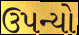
ઉપન્યો